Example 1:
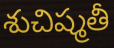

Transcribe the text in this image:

శుచిష్మతీ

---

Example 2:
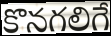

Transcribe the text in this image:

కొనగలిగే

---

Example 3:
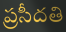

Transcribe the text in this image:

ప్రసీదతి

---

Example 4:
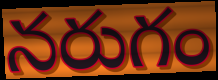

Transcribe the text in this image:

నరుగం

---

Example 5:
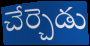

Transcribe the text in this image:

చేర్చెడు